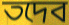
তদেব